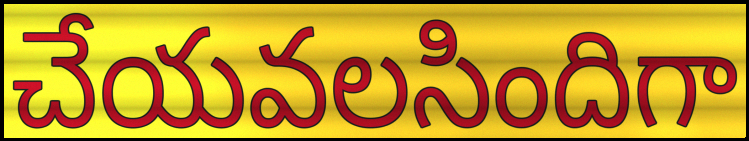
చేయవలసిందిగా